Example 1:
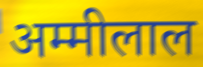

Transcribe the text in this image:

अम्मीलाल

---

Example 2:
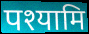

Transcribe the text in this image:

पश्यामि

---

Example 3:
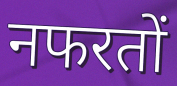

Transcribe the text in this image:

नफरतों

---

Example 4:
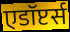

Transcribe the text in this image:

एडॉप्टर्स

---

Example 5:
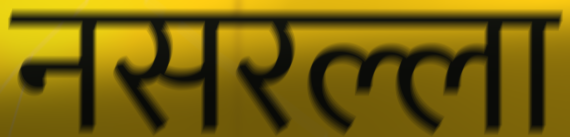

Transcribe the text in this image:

नसरल्ला